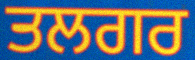
ਤਲਗਰ